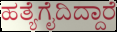
ಹತ್ಯೆಗೈದಿದ್ದಾರೆ